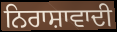
ਨਿਰਾਸ਼ਾਵਾਦੀ